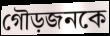
গৌড়জনকে